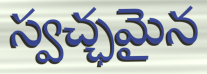
స్వచ్ఛమైన